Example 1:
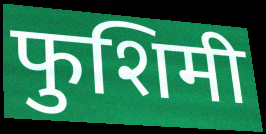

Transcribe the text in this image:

फुशिमी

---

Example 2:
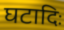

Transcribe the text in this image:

घटादिः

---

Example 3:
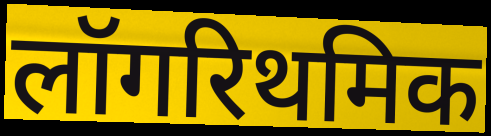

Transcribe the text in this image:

लॉगरिथमिक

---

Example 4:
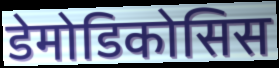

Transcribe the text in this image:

डेमोडिकोसिस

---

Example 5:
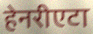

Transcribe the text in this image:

हेनरीएटा